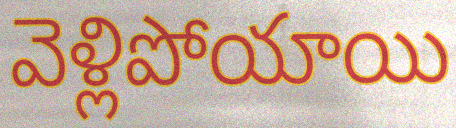
వెళ్లిపోయాయి